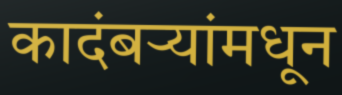
कादंबर्‍यांमधून